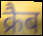
क्रैब